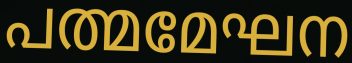
പത്മമേഘന